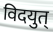
विदयुत्